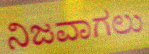
ನಿಜವಾಗಲು